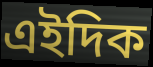
এইদিক